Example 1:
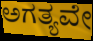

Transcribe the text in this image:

ಅಗತ್ಯವೇ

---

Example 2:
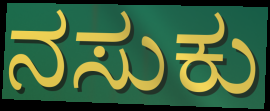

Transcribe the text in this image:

ನಸುಕು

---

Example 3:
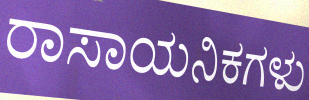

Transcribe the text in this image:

ರಾಸಾಯನಿಕಗಳು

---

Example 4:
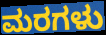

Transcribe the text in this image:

ಮರಗಳು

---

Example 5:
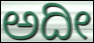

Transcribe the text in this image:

ಅದೀ